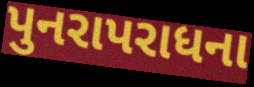
પુનરાપરાધના